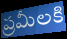
ప్రమీలకి